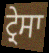
ਟ੍ਰੇਸਾ